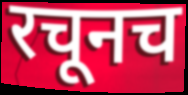
रचूनच